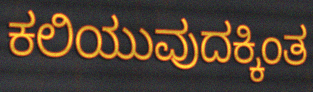
ಕಲಿಯುವುದಕ್ಕಿಂತ